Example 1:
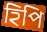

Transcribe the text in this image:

হিপি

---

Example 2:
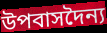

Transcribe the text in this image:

উপবাসদৈন্য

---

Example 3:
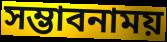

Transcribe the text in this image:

সম্ভাবনাময়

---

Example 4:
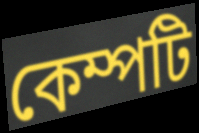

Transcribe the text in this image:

কেম্পটি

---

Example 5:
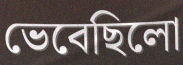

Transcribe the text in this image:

ভেবেছিলো